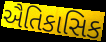
ઐતિકાસિક